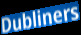
Dubliners